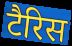
टैरिस